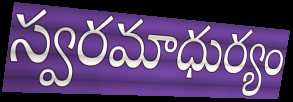
స్వరమాధుర్యం